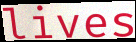
lives